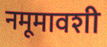
नमूमावशी